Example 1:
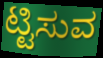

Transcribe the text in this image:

ಟ್ಟಿಸುವ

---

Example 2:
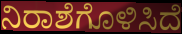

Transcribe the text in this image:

ನಿರಾಶೆಗೊಳಿಸಿದೆ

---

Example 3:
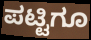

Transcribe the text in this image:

ಪಟ್ಟಿಗೂ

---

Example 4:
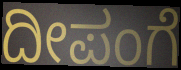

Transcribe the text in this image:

ದೀಪಂಗೆ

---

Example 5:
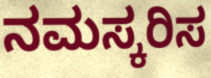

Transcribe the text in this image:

ನಮಸ್ಕರಿಸ